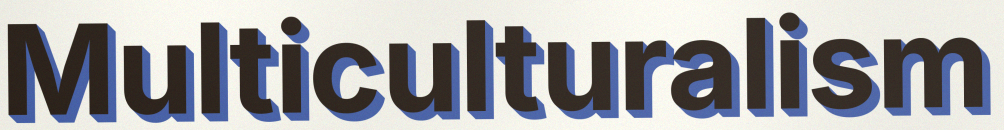
Multiculturalism